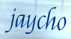
jaycho